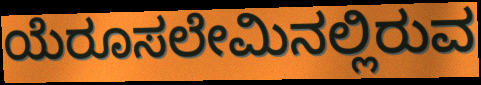
ಯೆರೂಸಲೇಮಿನಲ್ಲಿರುವ